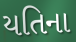
યતિના